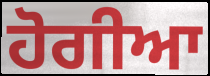
ਹੋਗੀਆ